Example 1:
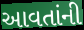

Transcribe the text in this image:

આવતાંની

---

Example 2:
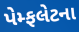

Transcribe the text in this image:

પેમ્ફલેટના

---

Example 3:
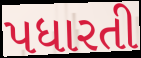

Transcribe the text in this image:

પધારતી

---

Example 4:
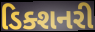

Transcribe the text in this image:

ડિક્શનરી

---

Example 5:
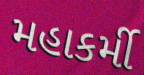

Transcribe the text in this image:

મહાકર્મી